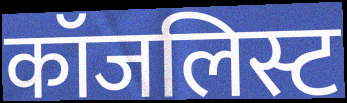
कॉजलिस्ट